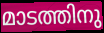
മാടത്തിനു